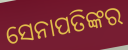
ସେନାପତିଙ୍କର